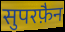
सुपरफ़ैन